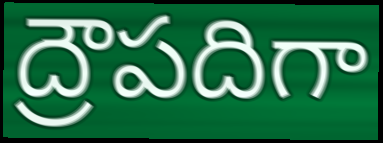
ద్రౌపదిగా